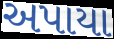
અપાયા